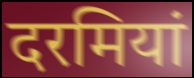
दरमियां